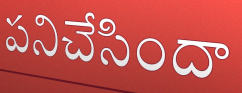
పనిచేసిందా